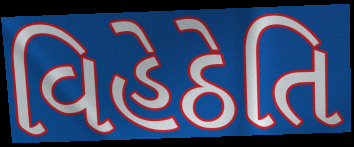
વિહેઠેતિ